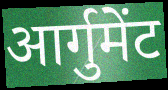
आर्गुमेंट